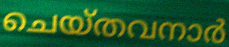
ചെയ്തവനാർ